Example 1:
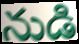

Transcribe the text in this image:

నుడి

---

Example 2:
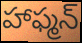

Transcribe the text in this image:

హాఫ్మన్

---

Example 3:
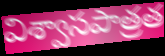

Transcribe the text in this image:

విశ్వాసపాత్రత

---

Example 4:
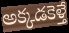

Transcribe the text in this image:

అక్కడకెళ్తే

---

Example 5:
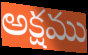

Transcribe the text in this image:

అక్షము